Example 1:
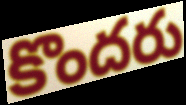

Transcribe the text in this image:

కొందరు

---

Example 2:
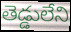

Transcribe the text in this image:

తెడ్డులేని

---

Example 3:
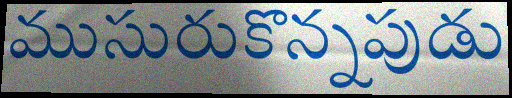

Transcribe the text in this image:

ముసురుకొన్నపుడు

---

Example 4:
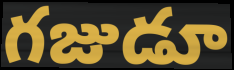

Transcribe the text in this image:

గజుడూ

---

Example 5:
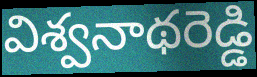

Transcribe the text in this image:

విశ్వనాథరెడ్డి